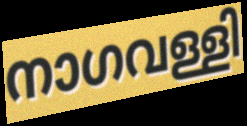
നാഗവള്ളി